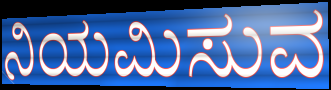
ನಿಯಮಿಸುವ